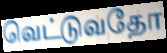
வெட்டுவதோ